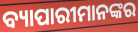
ବ୍ୟାପାରୀମାନଙ୍କର